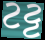
ટટ્ટ